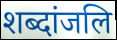
शब्दांजलि